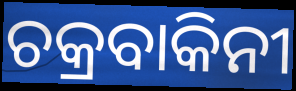
ଚକ୍ରବାକିନୀ